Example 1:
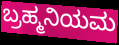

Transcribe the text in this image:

ಬ್ರಹ್ಮನಿಯಮ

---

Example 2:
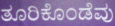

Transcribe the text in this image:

ತೂರಿಕೊಂಡೆವು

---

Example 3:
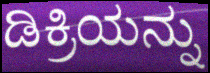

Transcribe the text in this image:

ಡಿಕ್ರಿಯನ್ನು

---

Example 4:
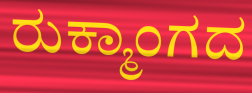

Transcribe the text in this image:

ರುಕ್ಮಾಂಗದ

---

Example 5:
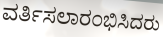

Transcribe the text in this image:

ವರ್ತಿಸಲಾರಂಭಿಸಿದರು